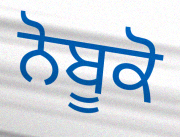
ਨੋਬੂਕੋ